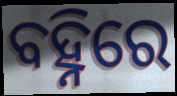
ବହ୍ନିରେ